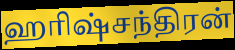
ஹரிஷ்சந்திரன்